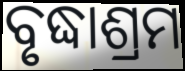
ବୃଦ୍ଧାଶ୍ରମ